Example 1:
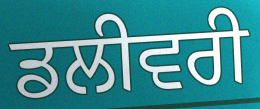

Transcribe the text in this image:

ਡਲੀਵਰੀ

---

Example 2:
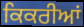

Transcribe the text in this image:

ਕਿਕਰੀਆਂ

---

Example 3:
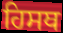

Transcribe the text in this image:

ਹਿਸਥ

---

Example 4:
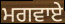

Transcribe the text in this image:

ਮਗਵਾਏ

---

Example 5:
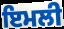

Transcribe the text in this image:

ਇਮਲੀ